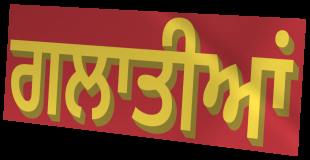
ਗਲਾਤੀਆਂ